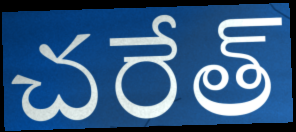
చరేత్